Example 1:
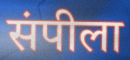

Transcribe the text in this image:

संपीला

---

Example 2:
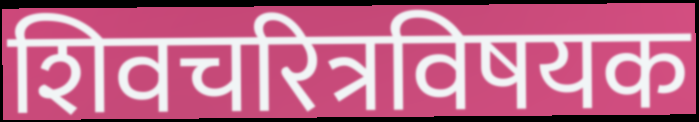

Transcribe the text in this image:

शिवचरित्रविषयक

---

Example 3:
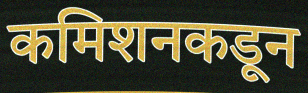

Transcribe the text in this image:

कमिशनकडून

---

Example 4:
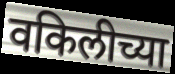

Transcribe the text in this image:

वकिलीच्या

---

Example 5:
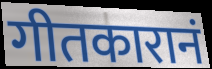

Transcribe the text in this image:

गीतकारानं